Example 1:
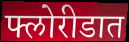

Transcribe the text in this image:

फ्लोरीडात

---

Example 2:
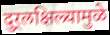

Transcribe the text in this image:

दुर्लक्षिल्यामुळे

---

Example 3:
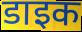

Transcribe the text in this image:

डाइक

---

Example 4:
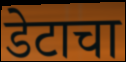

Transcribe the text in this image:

डेटाचा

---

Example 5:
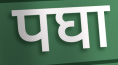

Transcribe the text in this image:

पघा